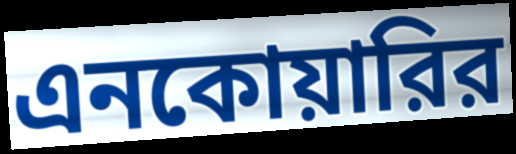
এনকোয়ারির